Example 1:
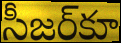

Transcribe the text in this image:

సీజర్‌కూ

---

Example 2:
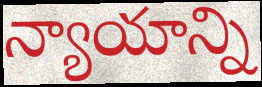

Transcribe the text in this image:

న్యాయాన్ని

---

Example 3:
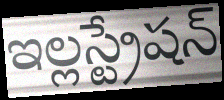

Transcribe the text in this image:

ఇల్లస్ట్రేషన్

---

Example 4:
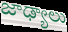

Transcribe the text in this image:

జాఢ్యాలు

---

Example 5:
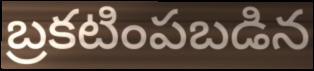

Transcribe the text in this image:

బ్రకటింపబడిన